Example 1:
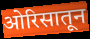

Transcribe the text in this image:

ओरिसातून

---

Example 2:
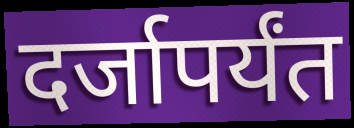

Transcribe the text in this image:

दर्जापर्यंत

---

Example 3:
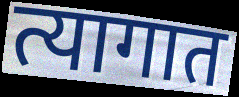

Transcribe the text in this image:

त्यागात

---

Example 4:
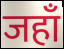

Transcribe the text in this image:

जहाँ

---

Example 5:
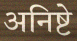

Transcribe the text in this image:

अनिष्टे